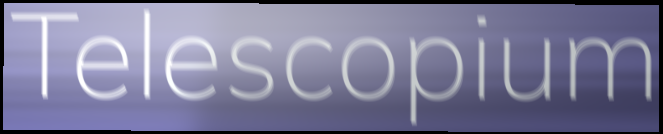
Telescopium